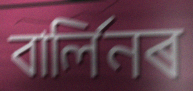
বাৰ্লিনৰ